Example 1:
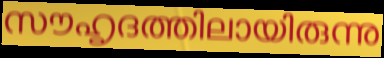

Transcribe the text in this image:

സൗഹൃദത്തിലായിരുന്നു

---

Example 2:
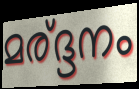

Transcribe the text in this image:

മര്ദ്ദനം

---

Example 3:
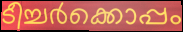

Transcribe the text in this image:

ടീച്ചർക്കൊപ്പം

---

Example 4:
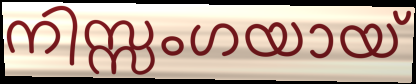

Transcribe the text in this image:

നിസ്സംഗയായ്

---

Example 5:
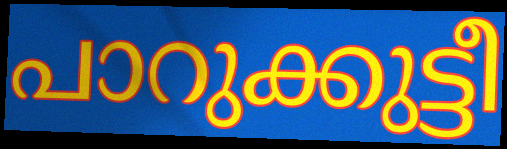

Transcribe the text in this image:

പാറുക്കുട്ടീ